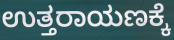
ಉತ್ತರಾಯಣಕ್ಕೆ